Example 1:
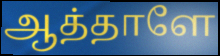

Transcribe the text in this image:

ஆத்தாளே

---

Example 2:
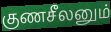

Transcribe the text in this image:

குணசீலனும்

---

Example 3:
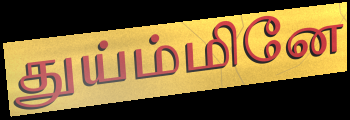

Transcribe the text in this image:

துய்ம்மினே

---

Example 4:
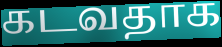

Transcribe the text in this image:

கடவதாக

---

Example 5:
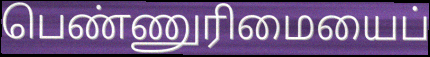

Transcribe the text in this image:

பெண்ணுரிமையைப்